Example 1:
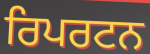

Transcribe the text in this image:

ਰਿਪਰਟਨ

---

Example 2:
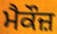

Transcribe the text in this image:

ਮੈਕੌਜ਼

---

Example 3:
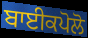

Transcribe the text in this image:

ਬਾਈਕਪੋਲੋ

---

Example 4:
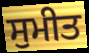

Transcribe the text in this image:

ਸੁਮੀਤ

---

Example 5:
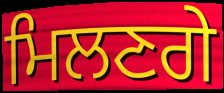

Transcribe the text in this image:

ਮਿਲਣਗੇ